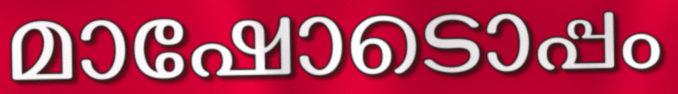
മാഷോടൊപ്പം